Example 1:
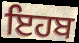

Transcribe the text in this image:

ਇਹਬ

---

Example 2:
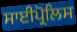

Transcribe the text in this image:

ਸਾਈਪ੍ਰੋਲਿਸ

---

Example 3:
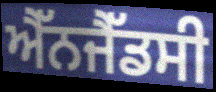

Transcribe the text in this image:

ਐੱਨਜੈੱਡਸੀ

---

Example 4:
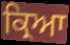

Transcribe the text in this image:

ਕ੍ਰਿਆ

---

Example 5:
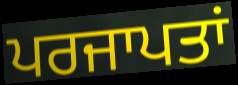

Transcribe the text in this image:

ਪਰਜਾਪਤਾਂ